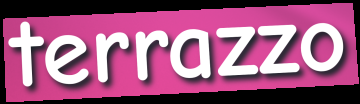
terrazzo